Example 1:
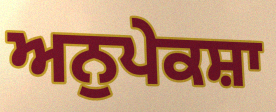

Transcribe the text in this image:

ਅਨੁਪੇਕਸ਼ਾ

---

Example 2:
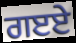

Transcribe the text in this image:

ਗੲਏ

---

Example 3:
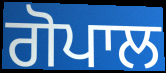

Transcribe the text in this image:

ਗੋਪਾਲ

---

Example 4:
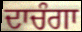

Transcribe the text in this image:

ਦਾਚੰਗਾ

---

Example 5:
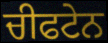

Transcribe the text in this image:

ਚੀਫਟੇਨ